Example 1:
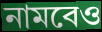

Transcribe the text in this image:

নামবেও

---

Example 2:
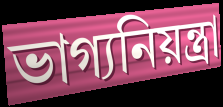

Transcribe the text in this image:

ভাগ্যনিয়ন্ত্রা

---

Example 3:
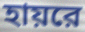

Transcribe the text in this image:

হায়রে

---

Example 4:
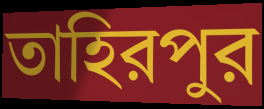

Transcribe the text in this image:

তাহিরপুর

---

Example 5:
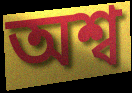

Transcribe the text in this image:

অশ্ব